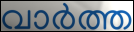
വാർത്ത